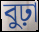
বুঢ়া